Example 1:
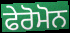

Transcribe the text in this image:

ਫੇਰੋਮੋਨ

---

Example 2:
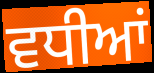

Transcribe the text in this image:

ਵਧੀਆਂ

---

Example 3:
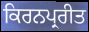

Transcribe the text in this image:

ਕਿਰਨਪ੍ਰਰੀਤ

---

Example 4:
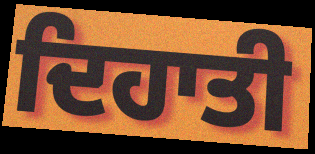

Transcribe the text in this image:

ਦਿਹਾਤੀ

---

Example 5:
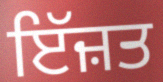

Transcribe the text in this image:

ਇੱਜ਼ਤ